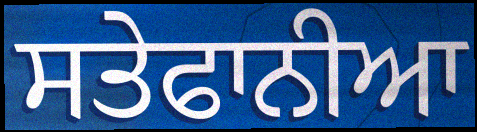
ਸਤੇਫਾਨੀਆ